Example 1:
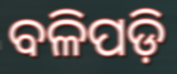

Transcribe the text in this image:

ବଳିପଡ଼ି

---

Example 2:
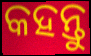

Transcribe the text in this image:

କହନ୍ତୁ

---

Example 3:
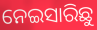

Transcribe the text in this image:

ନେଇସାରିଛୁ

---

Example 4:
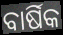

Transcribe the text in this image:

ବାର୍ଷିକ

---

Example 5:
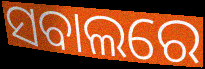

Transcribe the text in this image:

ସବାଲରେ